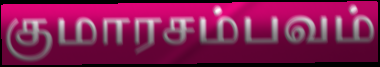
குமாரசம்பவம்